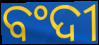
ବଂଦୀ